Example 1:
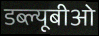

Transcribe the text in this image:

डब्ल्यूबीओ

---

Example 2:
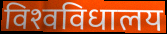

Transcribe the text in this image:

विश्वविधालय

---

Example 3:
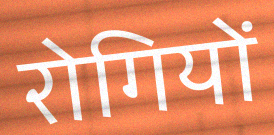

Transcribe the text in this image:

रोगियों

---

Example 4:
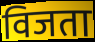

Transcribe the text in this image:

विजता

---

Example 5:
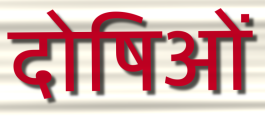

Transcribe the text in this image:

दोषिओं